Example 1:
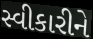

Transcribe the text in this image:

સ્વીકારીને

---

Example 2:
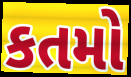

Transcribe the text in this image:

કતમો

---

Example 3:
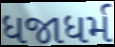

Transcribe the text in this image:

ધજાધર્મ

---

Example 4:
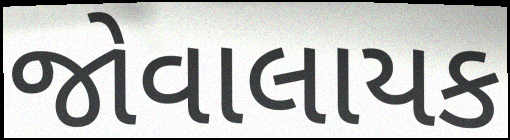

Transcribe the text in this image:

જોવાલાયક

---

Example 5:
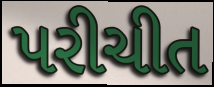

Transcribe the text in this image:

પરીચીત